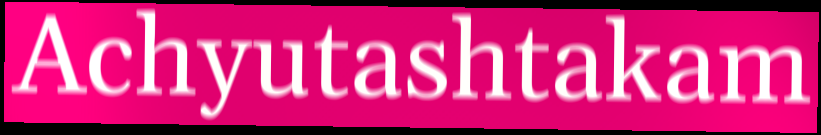
Achyutashtakam